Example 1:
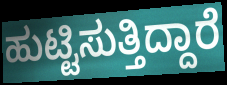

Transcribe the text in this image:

ಹುಟ್ಟಿಸುತ್ತಿದ್ದಾರೆ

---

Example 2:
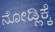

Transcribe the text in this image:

ನೋಡ್ಲಿಕ್ಕೆ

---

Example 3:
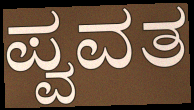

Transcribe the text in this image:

ಪ್ವವತ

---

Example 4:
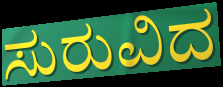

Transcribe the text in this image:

ಸುರುವಿದ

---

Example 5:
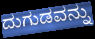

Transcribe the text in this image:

ದುಗುಡವನ್ನು